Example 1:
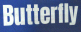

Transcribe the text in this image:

Butterfly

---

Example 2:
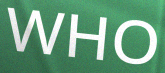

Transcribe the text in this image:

WHO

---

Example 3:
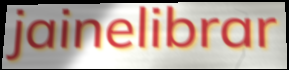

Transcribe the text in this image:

jainelibrar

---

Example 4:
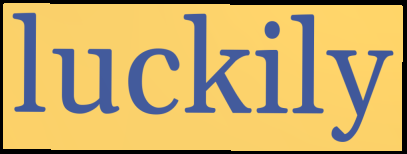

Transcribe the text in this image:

luckily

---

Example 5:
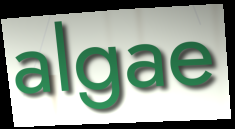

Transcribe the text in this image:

algae